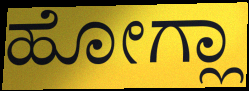
ಹೋಗ್ಲಾ